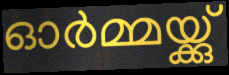
ഓർമ്മയ്ക്കു്